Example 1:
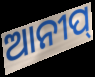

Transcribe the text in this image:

ଆନୀପ୍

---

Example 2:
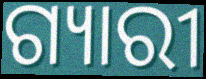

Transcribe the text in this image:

ଗ୍ୟାରୀ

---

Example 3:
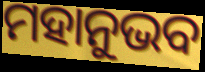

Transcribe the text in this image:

ମହାନୁଭବ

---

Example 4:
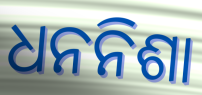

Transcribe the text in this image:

ଧନନିଶା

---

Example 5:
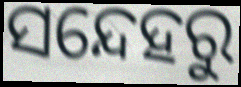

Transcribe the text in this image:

ସନ୍ଦେହରୁ